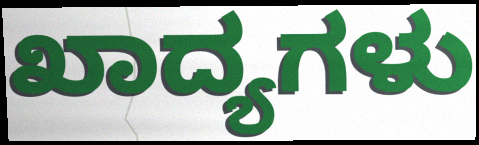
ಖಾದ್ಯಗಳು